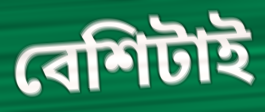
বেশিটাই